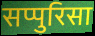
सप्पुरिसा